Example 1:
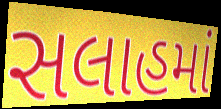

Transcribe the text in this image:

સલાહમાં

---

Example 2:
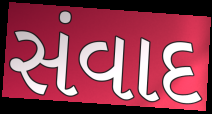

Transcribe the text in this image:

સંવાદ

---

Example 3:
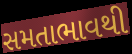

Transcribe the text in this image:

સમતાભાવથી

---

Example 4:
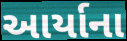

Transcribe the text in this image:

આર્યાના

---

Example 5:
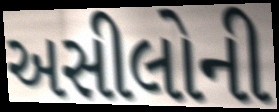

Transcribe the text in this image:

અસીલોની